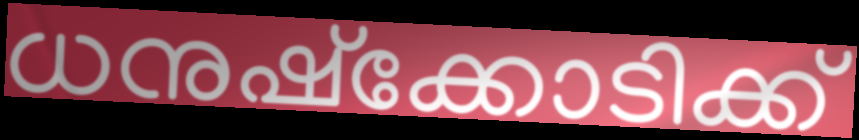
ധനുഷ്ക്കോടിക്ക്